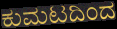
ಕುಮಟದಿಂದ